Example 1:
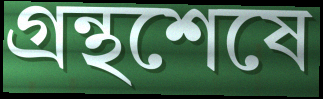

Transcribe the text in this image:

গ্রন্থশেষে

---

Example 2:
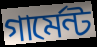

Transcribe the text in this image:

গার্মেন্ট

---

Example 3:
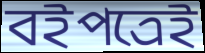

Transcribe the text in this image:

বইপত্রেই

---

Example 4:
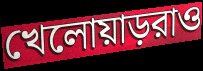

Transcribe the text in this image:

খেলোয়াড়রাও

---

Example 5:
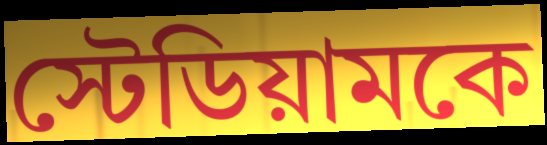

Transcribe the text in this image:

স্টেডিয়ামকে